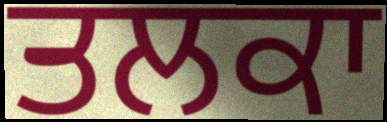
ਤਲਕਾ